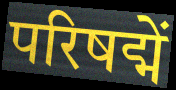
परिषद्में